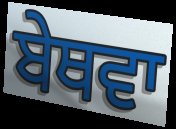
ਬੇਥਵਾ